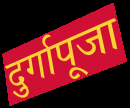
दुर्गापूजा